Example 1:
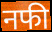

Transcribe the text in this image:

नफी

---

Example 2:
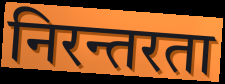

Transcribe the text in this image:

निरन्तरता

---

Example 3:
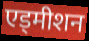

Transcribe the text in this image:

एड्मीशन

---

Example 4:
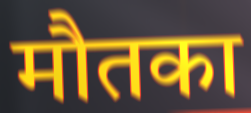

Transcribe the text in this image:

मौतका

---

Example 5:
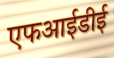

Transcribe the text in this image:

एफआईडीई